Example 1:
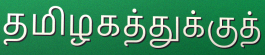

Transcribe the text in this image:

தமிழகத்துக்குத்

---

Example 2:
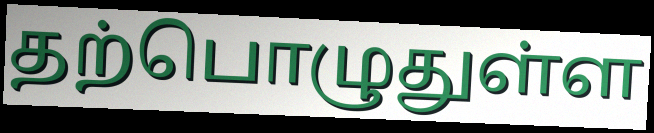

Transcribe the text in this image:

தற்பொழுதுள்ள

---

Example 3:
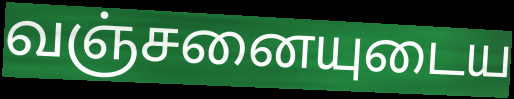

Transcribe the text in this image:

வஞ்சனையுடைய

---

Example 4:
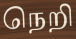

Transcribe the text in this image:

நெறி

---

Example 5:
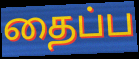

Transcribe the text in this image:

தைப்ப